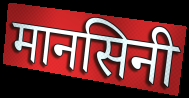
मानसिनी